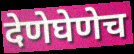
देणेघेणेच